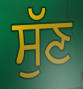
ਸੁੱਣ